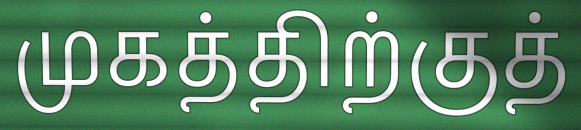
முகத்திற்குத்